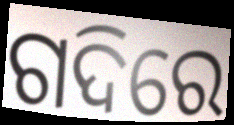
ଗଦିରେ